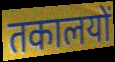
तकालयों